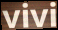
vivi